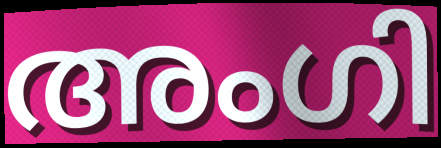
അംഗി